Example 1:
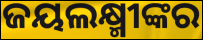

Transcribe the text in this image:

ଜୟଲକ୍ଷ୍ମୀଙ୍କର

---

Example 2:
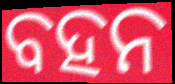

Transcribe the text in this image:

ବହନ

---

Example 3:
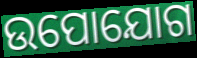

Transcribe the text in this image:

ଉପୋଯୋଗ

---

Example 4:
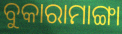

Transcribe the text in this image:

ବୁକାରାମାଙ୍ଗା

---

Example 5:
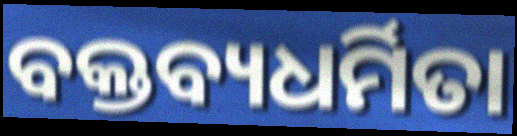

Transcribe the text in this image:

ବକ୍ତବ୍ୟଧର୍ମିତା